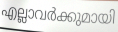
എല്ലാവർക്കുമായി